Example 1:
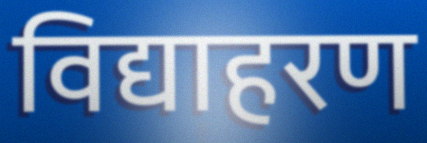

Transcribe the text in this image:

विद्याहरण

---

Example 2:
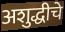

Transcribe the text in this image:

अशुद्धीचे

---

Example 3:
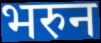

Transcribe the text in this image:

भरुन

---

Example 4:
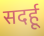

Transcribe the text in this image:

सदर्हू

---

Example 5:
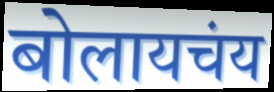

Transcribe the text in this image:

बोलायचंय